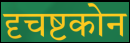
दृचष्टकोन